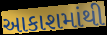
આકાશમાંથી